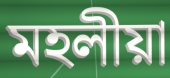
মহলীয়া